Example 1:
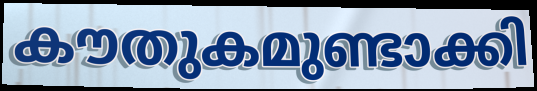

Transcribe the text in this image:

കൗതുകമുണ്ടാക്കി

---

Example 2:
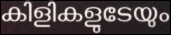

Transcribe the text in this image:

കിളികളുടേയും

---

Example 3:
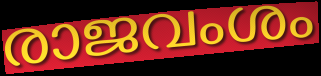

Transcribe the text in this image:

രാജവംശം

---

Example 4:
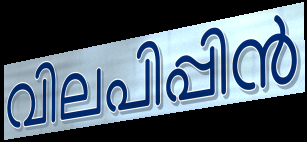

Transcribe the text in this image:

വിലപിപ്പിൻ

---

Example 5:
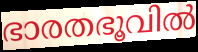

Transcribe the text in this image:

ഭാരതഭൂവിൽ